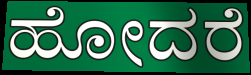
ಹೋದರೆ